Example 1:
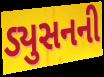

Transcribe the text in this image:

ડ્યુસનની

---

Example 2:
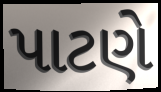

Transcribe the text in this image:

પાટણે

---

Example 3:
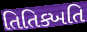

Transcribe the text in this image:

તિતિક્ખતિ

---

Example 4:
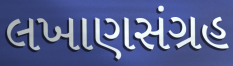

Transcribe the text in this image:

લખાણસંગ્રહ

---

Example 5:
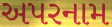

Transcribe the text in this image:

અપરનામ